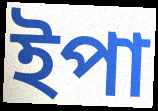
ইপা